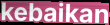
kebaikan